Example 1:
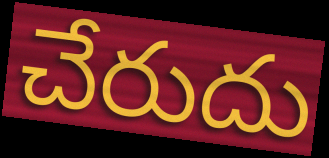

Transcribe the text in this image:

చేరుదు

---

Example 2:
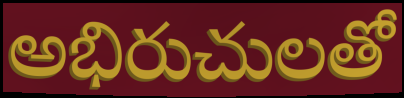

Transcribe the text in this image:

అభిరుచులతో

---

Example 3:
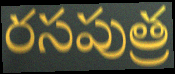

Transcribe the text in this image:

రసపుత్ర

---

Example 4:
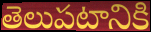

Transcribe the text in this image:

తెలుపటానికి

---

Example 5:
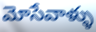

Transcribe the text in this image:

మోసేవాళ్ళు